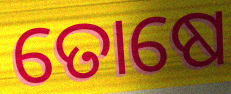
ତୋଷେ